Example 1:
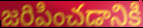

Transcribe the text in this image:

జరిపించడానికి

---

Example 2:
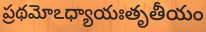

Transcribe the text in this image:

ప్రథమోఽధ్యాయఃతృతీయం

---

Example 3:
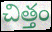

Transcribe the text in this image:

చిత్తం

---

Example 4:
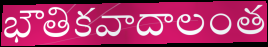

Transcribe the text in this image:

భౌతికవాదాలంత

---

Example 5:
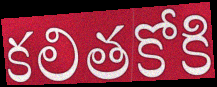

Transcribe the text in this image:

కలితకోకి